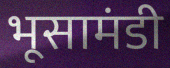
भूसामंडी